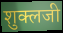
शुक्‍लजी